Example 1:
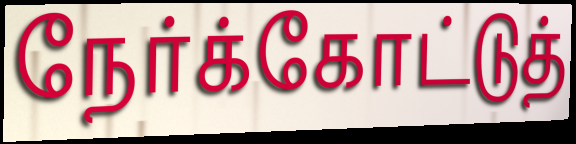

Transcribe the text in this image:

நேர்க்கோட்டுத்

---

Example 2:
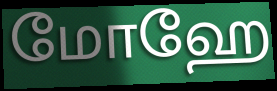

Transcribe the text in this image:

மோஹே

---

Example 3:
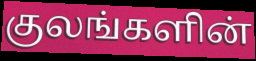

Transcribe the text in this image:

குலங்களின்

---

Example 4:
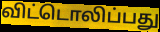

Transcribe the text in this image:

விட்டொலிப்பது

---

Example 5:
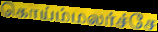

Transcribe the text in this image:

கொய்ம்மலர்ச்சே